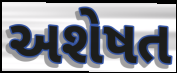
અશેષત